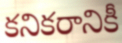
కనికరానికీ